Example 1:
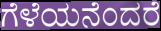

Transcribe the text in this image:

ಗೆಳೆಯನೆಂದರೆ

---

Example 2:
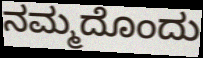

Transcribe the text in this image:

ನಮ್ಮದೊಂದು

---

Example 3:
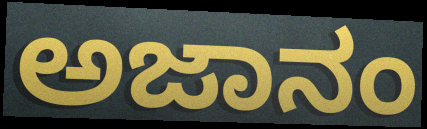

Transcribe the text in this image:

ಅಜಾನಂ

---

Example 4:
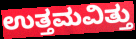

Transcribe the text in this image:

ಉತ್ತಮವಿತ್ತು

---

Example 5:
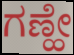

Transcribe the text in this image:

ಗಣ್ಹೇ